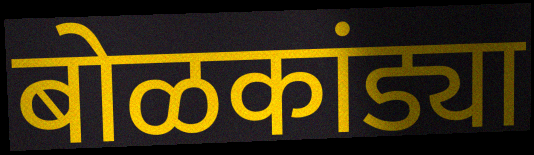
बोळकांड्या